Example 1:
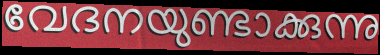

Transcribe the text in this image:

വേദനയുണ്ടാക്കുന്നു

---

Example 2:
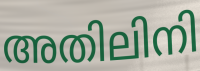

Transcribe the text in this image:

അതിലിനി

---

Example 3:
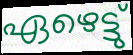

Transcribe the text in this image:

ഏഴെട്ടു്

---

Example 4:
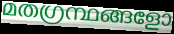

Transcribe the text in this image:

മതഗ്രന്ഥങ്ങളോ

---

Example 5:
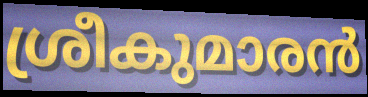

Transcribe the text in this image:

ശ്രീകുമാരൻ